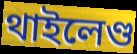
থাইলেণ্ড